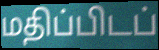
மதிப்பிடப்